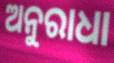
ଅନୁରାଧା